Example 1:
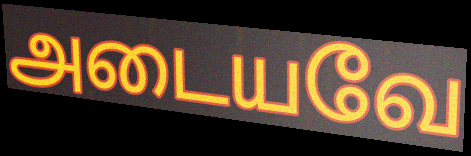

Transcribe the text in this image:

அடையவே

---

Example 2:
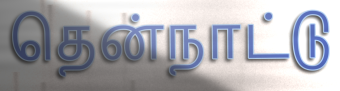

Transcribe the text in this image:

தென்நாட்டு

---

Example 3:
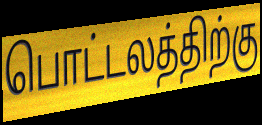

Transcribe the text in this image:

பொட்டலத்திற்கு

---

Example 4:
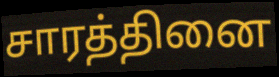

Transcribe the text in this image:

சாரத்தினை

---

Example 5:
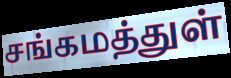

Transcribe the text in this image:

சங்கமத்துள்